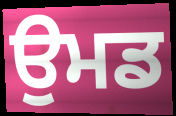
ਉਮਡ